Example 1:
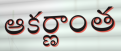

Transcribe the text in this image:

ఆకర్ణాంత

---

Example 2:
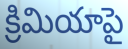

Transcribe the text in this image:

క్రిమియాపై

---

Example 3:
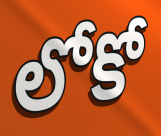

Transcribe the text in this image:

లోకో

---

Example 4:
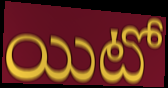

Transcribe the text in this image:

యిటో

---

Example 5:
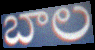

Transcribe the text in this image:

బాల